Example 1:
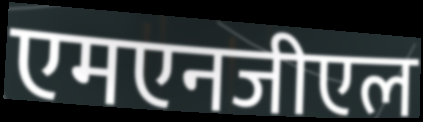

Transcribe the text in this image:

एमएनजीएल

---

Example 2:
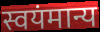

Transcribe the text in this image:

स्वयंमान्य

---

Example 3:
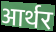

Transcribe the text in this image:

आर्थर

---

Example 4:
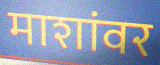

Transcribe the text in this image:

माशांवर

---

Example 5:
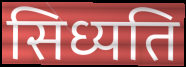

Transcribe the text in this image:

सिध्यति